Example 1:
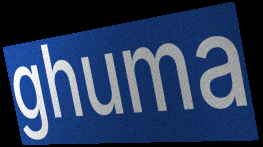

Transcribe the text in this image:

ghuma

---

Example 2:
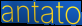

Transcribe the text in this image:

antato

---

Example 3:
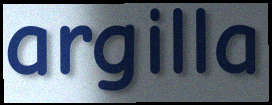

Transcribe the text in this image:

argilla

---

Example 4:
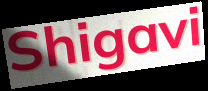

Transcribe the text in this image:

Shigavi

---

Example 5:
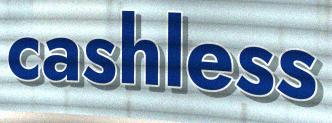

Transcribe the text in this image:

cashless